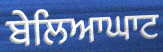
ਬੇਲਿਆਘਾਟ